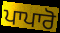
ਪਾਪਾਰੋ